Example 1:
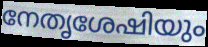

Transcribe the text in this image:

നേതൃശേഷിയും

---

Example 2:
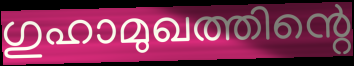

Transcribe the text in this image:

ഗുഹാമുഖത്തിന്റെ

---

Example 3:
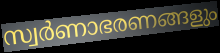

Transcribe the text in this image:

സ്വർണാഭരണങ്ങളും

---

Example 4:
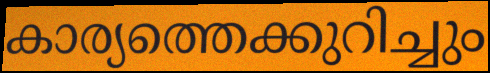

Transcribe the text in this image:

കാര്യത്തെക്കുറിച്ചും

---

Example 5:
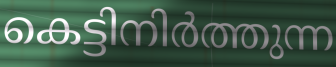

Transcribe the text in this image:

കെട്ടിനിർത്തുന്ന